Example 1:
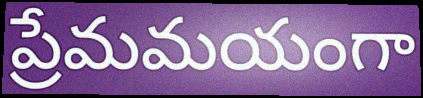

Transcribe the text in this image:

ప్రేమమయంగా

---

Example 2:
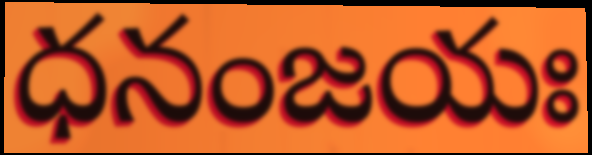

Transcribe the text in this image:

ధనంజయః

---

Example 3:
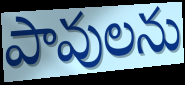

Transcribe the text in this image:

పావులను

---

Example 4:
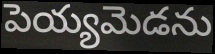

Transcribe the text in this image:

పెయ్యమెడను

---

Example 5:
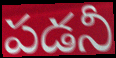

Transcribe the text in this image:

పడనీ